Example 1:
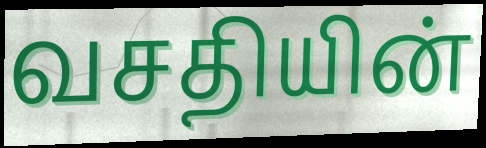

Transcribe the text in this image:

வசதியின்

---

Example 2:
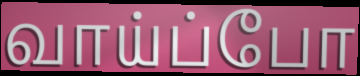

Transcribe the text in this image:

வாய்ப்போ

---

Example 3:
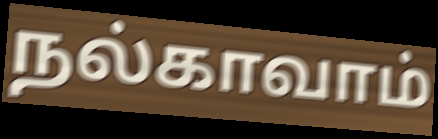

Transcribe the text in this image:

நல்காவாம்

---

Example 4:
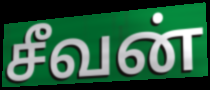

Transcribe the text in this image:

சீவன்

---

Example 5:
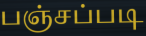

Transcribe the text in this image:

பஞ்சப்படி